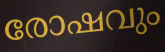
രോഷവും